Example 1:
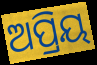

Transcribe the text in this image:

ଅପ୍ରିୟ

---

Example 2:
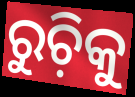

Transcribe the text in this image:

ରୁଚ଼ିକୁ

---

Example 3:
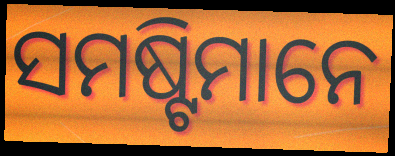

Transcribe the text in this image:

ସମଷ୍ଟିମାନେ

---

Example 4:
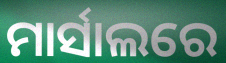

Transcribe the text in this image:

ମାର୍ସାଲରେ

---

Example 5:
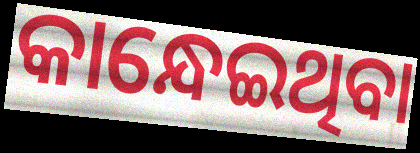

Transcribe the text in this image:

କାନ୍ଧେଇଥିବା